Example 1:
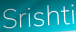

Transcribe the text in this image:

Srishti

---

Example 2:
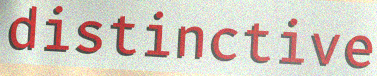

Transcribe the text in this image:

distinctive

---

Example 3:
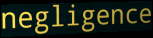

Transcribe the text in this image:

negligence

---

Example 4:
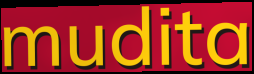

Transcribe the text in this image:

mudita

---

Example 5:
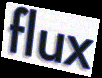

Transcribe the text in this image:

flux